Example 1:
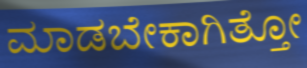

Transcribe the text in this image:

ಮಾಡಬೇಕಾಗಿತ್ತೋ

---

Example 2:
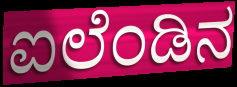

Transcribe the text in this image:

ಐಲೆಂಡಿನ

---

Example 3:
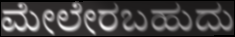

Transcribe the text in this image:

ಮೇಲೇರಬಹುದು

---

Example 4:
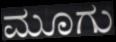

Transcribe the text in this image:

ಮೂಗು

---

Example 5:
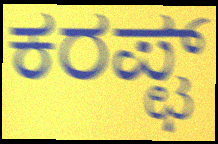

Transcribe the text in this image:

ಕರಪ್ಟ್